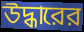
উদ্ধারের